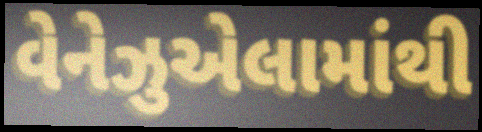
વેનેઝુએલામાંથી